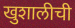
खुशालीची